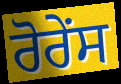
ਰੋਰੇਂਸ